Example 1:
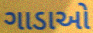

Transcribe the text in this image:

ગાડાઓ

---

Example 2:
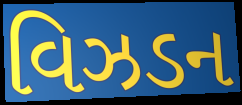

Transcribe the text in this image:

વિઝડન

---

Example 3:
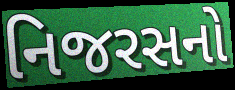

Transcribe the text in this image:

નિજરસનો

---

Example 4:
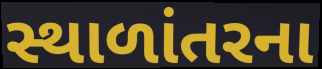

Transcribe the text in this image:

સ્થાળાંતરના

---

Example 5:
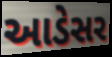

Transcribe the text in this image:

આડેસર